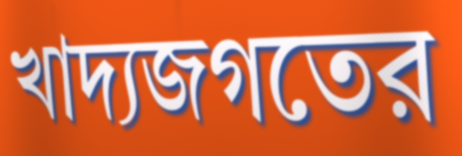
খাদ্যজগতের